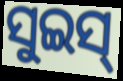
ସୁଇସ୍